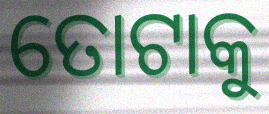
ତୋଟାକୁ